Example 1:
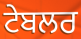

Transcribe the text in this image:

ਟੇਬਲਰ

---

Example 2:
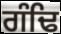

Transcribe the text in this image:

ਗੰਢਿ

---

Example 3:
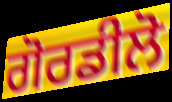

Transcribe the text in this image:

ਗੋਰਡੀਲੋ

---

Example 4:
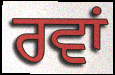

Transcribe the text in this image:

ਰਵਾਂ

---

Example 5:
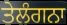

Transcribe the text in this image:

ਤੇਲੰਗਨਾ